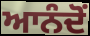
ਆਨੰਦੋਂ